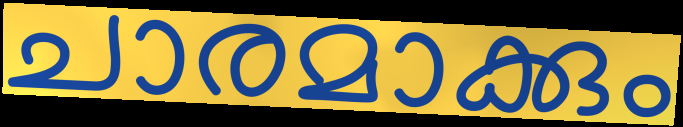
ചാരമാക്കും